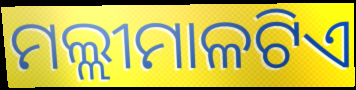
ମଲ୍ଲୀମାଳଟିଏ